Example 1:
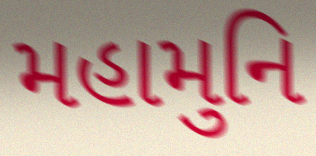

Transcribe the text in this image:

મહામુનિ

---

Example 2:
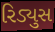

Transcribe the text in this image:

રિડ્યુસ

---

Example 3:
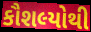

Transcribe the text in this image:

કૌશલ્યોથી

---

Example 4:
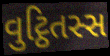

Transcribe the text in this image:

વુટ્ઠિતસ્સ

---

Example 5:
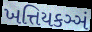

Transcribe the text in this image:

ખત્તિયકઞ્ઞં